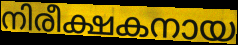
നിരീക്ഷകനായ